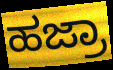
ಹಜ್ರಾ